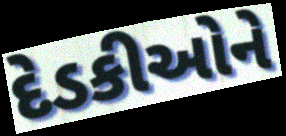
દેડકીઓને